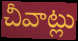
చీవాట్లు